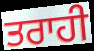
ਤਰਾਹੀ